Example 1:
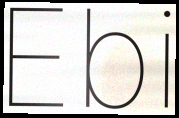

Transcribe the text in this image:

Ebi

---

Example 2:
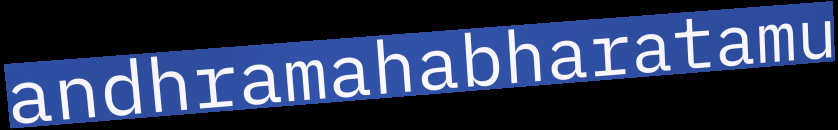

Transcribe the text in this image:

andhramahabharatamu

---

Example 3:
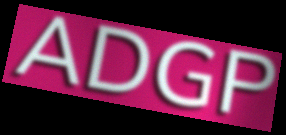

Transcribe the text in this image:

ADGP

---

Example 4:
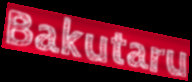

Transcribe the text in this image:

Bakutaru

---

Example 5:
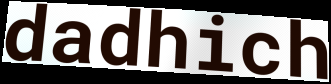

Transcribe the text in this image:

dadhich